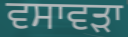
ਵਸਾਵੜਾ